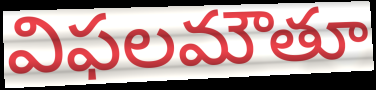
విఫలమౌతూ